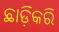
ଛାଡ଼ିକରି